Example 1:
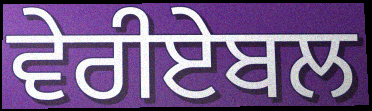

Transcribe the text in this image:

ਵੇਰੀਏਬਲ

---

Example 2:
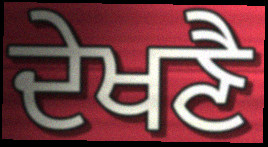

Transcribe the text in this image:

ਦੇਖਣੈ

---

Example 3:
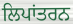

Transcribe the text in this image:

ਲਿਪਾਂਤਰਨ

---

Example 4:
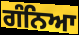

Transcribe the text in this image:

ਗੰਨਿਆ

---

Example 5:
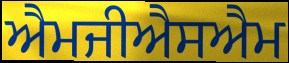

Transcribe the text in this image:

ਐਮਜੀਐਸਐਮ